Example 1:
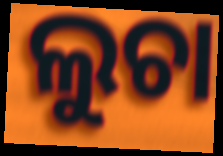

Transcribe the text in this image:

ଲୁଚା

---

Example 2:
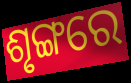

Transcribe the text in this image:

ଶୃଙ୍ଗରେ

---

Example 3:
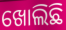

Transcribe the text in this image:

ଖୋଲିଛି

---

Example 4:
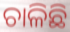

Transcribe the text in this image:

ଚାଳିଛି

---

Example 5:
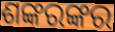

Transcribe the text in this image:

ଶଙ୍କରଙ୍କର